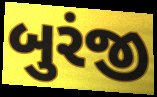
બુરંજી